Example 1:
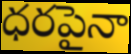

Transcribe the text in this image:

ధరపైనా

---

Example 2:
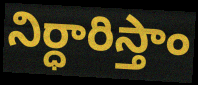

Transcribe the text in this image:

నిర్ధారిస్తాం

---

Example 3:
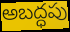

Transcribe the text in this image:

అబద్ధపు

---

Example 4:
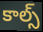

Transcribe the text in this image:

కాల్స్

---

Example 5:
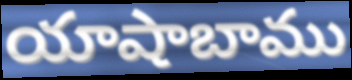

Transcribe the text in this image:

యాషాబాము